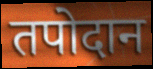
तपोदान